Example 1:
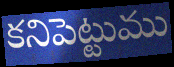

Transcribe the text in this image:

కనిపెట్టుము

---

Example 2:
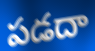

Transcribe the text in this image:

పడదా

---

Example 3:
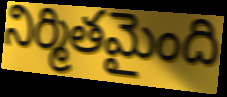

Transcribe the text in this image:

నిర్మితమైంది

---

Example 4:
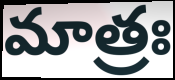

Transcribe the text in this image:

మాత్రః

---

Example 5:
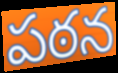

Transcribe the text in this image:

పఠన